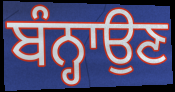
ਬੰਨ੍ਹਾਉਣ